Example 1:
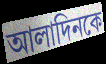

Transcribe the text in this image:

আলাদিনকে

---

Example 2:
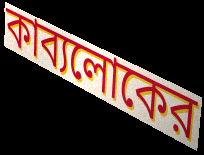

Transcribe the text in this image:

কাব্যলোকের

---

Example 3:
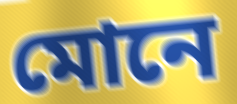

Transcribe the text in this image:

মোনে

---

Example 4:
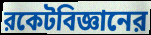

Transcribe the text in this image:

রকেটবিজ্ঞানের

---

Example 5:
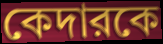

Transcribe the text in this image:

কেদারকে